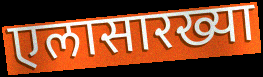
एलासारख्या